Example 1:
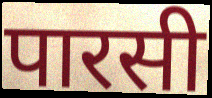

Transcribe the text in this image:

पारसी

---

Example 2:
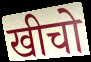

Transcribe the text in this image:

खीचो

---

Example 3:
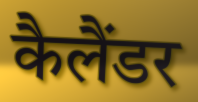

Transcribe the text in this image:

कैलैंडर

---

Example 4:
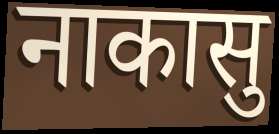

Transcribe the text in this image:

नाकासु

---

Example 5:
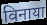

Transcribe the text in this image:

विनाया